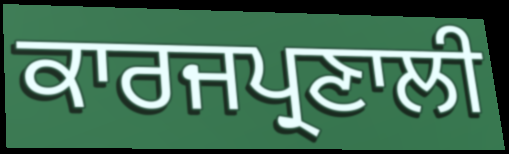
ਕਾਰਜਪ੍ਰਣਾਲੀ